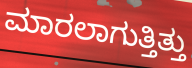
ಮಾರಲಾಗುತ್ತಿತ್ತು